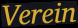
Verein